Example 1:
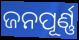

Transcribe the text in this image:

ଜନପୂର୍ଣ୍ଣ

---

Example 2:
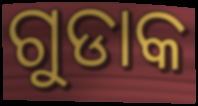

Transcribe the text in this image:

ଗୁଡାକ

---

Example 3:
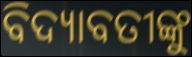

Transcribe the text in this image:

ବିଦ୍ୟାବତୀଙ୍କୁ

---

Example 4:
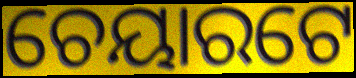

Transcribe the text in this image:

ଚେୟାରଟେ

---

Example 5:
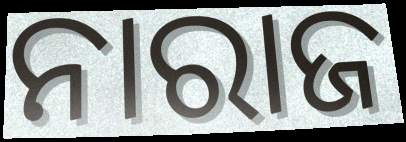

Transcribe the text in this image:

ନାରାଜ